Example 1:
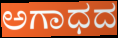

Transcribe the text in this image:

ಅಗಾಧದ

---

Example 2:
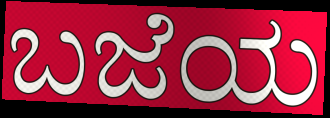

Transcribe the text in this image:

ಬಜೆಯ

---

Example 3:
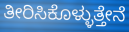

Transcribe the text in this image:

ತೀರಿಸಿಕೊಳ್ಳುತ್ತೇನೆ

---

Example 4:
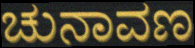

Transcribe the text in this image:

ಚುನಾವಣ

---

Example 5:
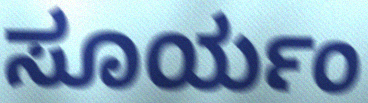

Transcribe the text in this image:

ಸೂರ್ಯಂ